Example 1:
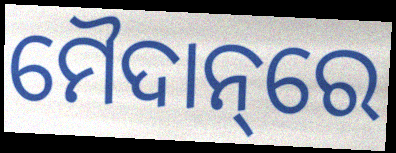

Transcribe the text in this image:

ମୈଦାନ୍‌ରେ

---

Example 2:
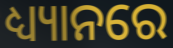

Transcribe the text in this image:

ଧ୍ୟ୍ୟାନରେ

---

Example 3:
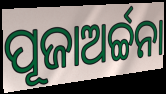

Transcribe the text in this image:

ପୂଜାଅର୍ଚ୍ଚନା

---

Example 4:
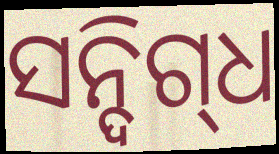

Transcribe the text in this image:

ସନ୍ଦିଗ୍‌ଧ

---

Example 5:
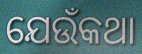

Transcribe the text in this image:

ଯେଉଁକଥା